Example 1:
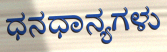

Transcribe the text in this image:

ಧನಧಾನ್ಯಗಳು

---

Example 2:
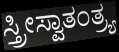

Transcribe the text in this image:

ಸ್ತ್ರೀಸ್ವಾತಂತ್ರ್ಯ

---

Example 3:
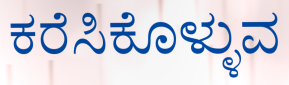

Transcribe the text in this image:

ಕರೆಸಿಕೊಳ್ಳುವ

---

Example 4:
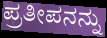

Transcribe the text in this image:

ಪ್ರತೀಪನನ್ನು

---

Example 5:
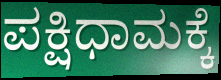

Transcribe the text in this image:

ಪಕ್ಷಿಧಾಮಕ್ಕೆ